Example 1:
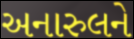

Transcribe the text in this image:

અનારુલને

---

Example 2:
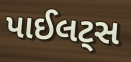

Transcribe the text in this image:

પાઈલટ્સ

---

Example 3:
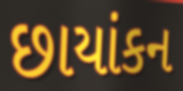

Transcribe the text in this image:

છાયાંકન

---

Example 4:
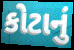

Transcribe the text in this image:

કોટાનું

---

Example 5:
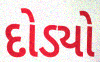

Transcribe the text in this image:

દોડ્યો